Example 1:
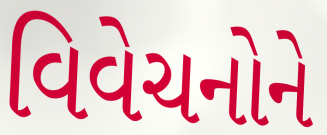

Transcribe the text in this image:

વિવેચનોને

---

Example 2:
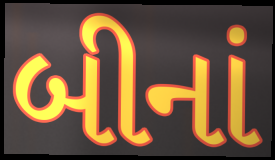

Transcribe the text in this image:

બીનાં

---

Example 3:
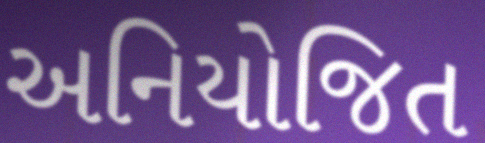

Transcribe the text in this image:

અનિયોજિત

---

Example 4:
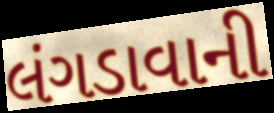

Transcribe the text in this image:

લંગડાવાની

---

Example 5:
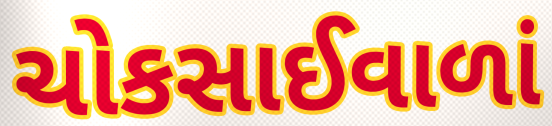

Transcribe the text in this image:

ચોકસાઈવાળાં